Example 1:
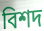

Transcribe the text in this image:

বিশদ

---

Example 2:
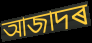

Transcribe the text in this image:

আজাদৰ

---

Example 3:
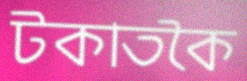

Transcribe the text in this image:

টকাতকৈ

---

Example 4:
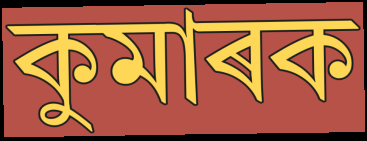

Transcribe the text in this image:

কুমাৰক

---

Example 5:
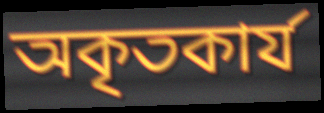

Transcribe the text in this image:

অকৃতকাৰ্য